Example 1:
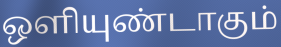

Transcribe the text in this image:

ஒளியுண்டாகும்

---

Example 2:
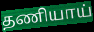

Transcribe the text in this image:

தணியாய்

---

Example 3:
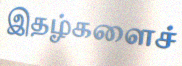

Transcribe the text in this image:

இதழ்களைச்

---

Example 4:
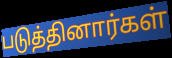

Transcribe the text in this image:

படுத்தினார்கள்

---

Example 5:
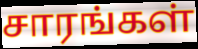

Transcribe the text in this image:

சாரங்கள்